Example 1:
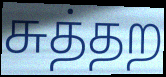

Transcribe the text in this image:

சுத்தற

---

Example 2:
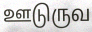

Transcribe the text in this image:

ஊடுருவ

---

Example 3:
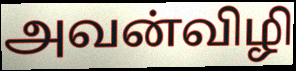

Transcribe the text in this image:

அவன்விழி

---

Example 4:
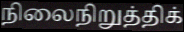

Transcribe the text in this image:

நிலைநிறுத்திக்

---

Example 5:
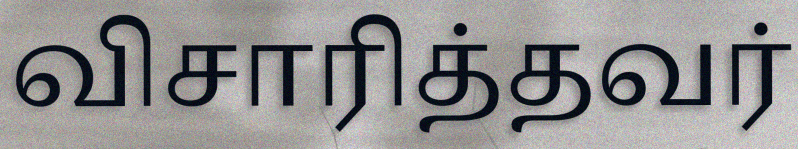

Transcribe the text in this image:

விசாரித்தவர்